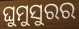
ଘୁମୁସୁରର